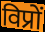
विप्रों